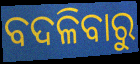
ବଦଳିବାରୁ